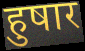
हुषार